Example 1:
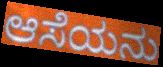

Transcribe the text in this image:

ಆಸೆಯನು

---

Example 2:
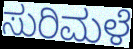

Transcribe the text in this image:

ಸುರಿಮಳೆ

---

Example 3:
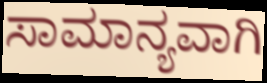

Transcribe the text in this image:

ಸಾಮಾನ್ಯವಾಗಿ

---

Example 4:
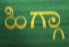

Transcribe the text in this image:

ಹಿಗ್ಗಾ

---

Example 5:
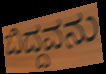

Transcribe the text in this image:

ಬಿದ್ದವನು